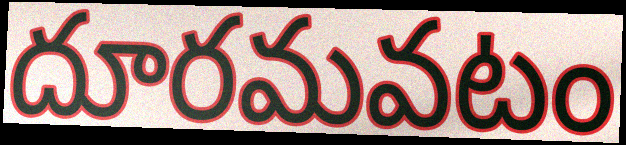
దూరమవటం